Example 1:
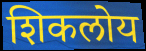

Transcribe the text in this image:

शिकलोय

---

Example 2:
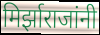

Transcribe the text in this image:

मिर्झाराजांनी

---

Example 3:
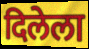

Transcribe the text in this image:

दिलेला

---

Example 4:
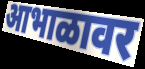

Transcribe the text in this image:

आभाळावर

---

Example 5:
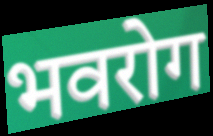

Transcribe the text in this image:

भवरोग